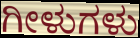
ಗೀಳುಗಳು